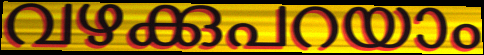
വഴക്കുപറയാം